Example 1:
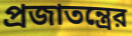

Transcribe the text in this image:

প্রজাতন্ত্রের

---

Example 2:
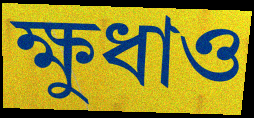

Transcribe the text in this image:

ক্ষুধাও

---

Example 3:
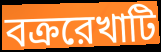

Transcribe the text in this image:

বক্ররেখাটি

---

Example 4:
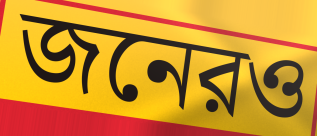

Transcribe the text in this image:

জনেরও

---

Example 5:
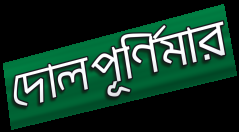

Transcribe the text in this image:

দোলপূর্ণিমার